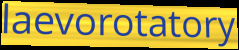
laevorotatory